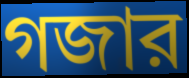
গজার